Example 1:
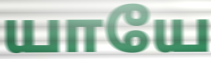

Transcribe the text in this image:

யாயே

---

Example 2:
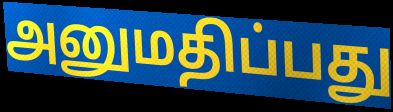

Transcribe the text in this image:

அனுமதிப்பது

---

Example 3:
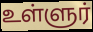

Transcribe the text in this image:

உள்ளுர்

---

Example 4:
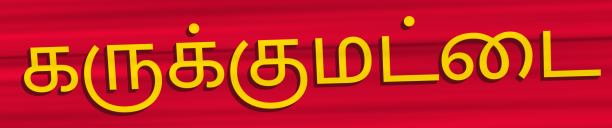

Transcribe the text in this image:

கருக்குமட்டை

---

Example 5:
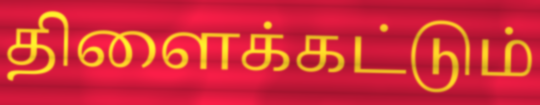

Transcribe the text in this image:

திளைக்கட்டும்